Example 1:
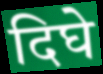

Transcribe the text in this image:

दिघे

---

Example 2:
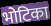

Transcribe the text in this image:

भोटिका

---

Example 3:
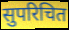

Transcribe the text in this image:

सुपरिचित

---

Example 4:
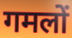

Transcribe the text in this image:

गमलों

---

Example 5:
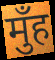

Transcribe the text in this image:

मुँह